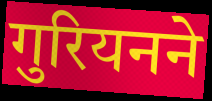
गुरियनने